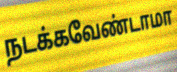
நடக்கவேண்டாமா